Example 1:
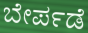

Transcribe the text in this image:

ಬೇರ್ಪಡೆ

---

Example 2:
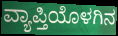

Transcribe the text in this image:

ವ್ಯಾಪ್ತಿಯೊಳಗಿನ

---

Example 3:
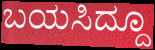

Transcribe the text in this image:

ಬಯಸಿದ್ದೂ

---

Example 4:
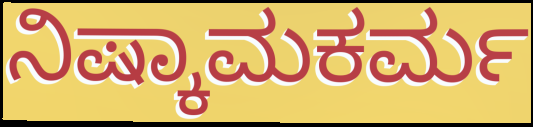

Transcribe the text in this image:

ನಿಷ್ಕಾಮಕರ್ಮ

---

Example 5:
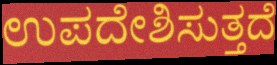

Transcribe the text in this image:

ಉಪದೇಶಿಸುತ್ತದೆ